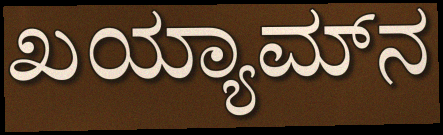
ಖಯ್ಯಾಮ್‌ನ